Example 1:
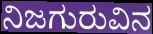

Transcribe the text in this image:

ನಿಜಗುರುವಿನ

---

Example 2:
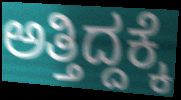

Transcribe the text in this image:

ಅತ್ತಿದ್ದಕ್ಕೆ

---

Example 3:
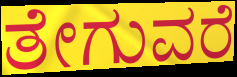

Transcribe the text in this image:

ತೇಗುವರೆ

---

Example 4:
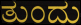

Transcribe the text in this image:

ತುಂದು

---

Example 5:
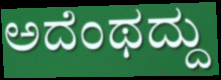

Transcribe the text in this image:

ಅದೆಂಥದ್ದು